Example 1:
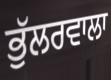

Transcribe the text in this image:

ਭੁੱਲਰਵਾਲਾ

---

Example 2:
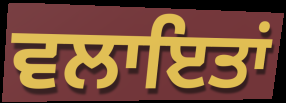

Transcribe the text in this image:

ਵਲਾਇਤਾਂ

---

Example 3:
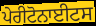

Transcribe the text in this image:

ਪੇਰੀਟੋਨਾਈਟਸ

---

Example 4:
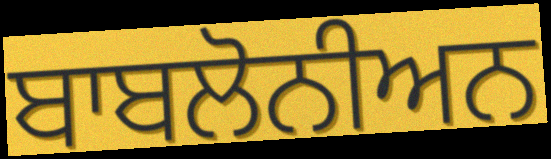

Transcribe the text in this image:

ਬਾਬਲੋਨੀਅਨ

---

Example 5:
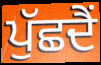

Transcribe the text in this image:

ਪੁੱਛਦੈਂ